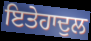
ਇਤੇਹਾਦੁਲ